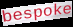
bespoke